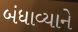
બંધાવ્યાને